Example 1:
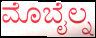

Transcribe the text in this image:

ಮೊಬೈಲ್ನ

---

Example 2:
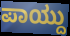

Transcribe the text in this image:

ಪಾಯ್ದು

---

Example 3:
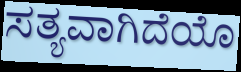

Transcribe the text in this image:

ಸತ್ಯವಾಗಿದೆಯೊ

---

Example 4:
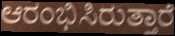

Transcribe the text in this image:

ಆರಂಭಿಸಿರುತ್ತಾರೆ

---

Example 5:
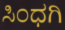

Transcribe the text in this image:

ಸಿಂಧಗಿ